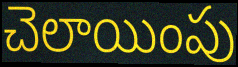
చెలాయింపు